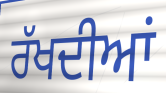
ਰੱਖਦੀਆਂ